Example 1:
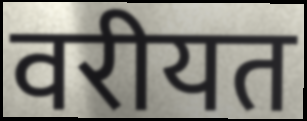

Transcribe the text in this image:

वरीयत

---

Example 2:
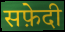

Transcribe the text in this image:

सफ़ेदी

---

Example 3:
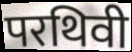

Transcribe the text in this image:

परथिवी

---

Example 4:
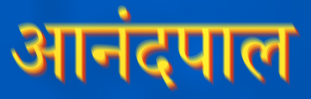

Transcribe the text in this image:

आनंदपाल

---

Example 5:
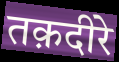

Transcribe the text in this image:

तक़दीरे